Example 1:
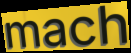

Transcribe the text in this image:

mach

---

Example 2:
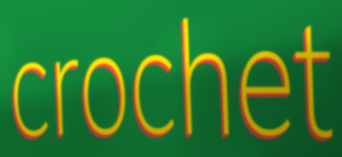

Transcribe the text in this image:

crochet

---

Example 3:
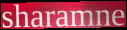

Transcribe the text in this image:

sharamne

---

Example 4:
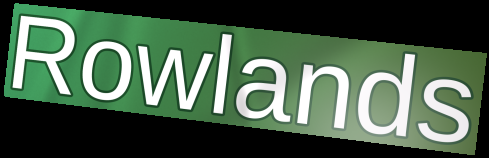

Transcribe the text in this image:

Rowlands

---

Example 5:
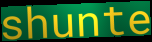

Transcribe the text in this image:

shunte